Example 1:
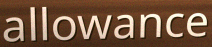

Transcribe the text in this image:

allowance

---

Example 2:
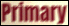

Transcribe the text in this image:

Primary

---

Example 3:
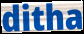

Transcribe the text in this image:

ditha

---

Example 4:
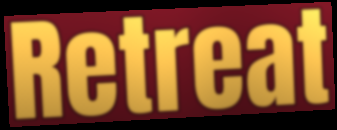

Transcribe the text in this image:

Retreat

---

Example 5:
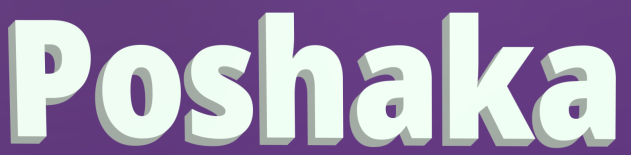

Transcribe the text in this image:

Poshaka